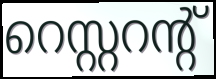
റെസ്റ്ററന്റ്